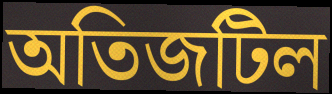
অতিজটিল